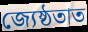
জ্যেষ্ঠতাত